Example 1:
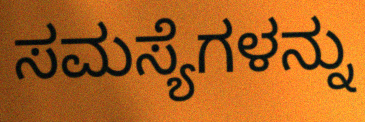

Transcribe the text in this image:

ಸಮಸ್ಯೆಗಳನ್ನು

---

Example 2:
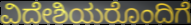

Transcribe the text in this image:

ವಿದೇಶಿಯರೊಂದಿಗೆ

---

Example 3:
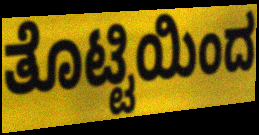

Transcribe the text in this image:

ತೊಟ್ಟಿಯಿಂದ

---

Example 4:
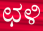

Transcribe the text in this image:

ಛಳಿ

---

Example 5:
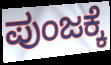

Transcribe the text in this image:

ಪುಂಜಕ್ಕೆ